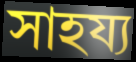
সাহয্য